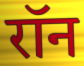
रॉन